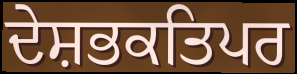
ਦੇਸ਼ਭਕਤਿਪਰ